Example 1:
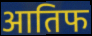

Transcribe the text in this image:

आतिफ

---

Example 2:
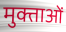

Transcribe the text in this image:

मुक्ताओं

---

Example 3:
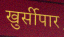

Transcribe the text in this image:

खुर्सीपार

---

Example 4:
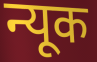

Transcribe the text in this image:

न्यूक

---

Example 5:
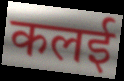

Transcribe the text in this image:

कलई